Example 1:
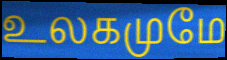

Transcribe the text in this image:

உலகமுமே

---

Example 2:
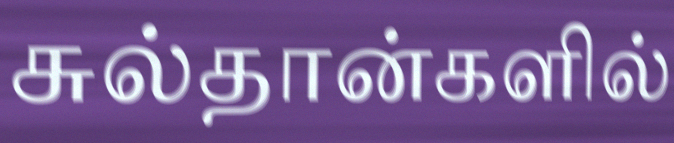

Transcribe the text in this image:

சுல்தான்களில்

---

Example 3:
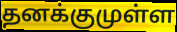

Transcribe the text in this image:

தனக்குமுள்ள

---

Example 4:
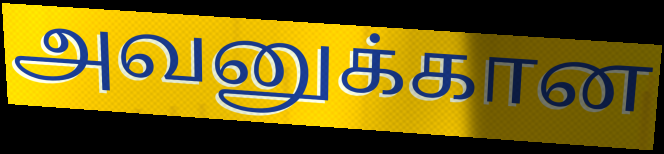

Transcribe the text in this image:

அவனுக்கான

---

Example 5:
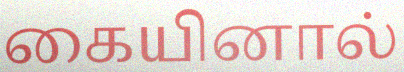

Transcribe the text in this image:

கையினால்